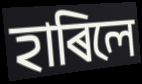
হাৰিলে